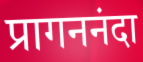
प्रागननंदा